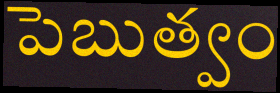
పెబుత్వం